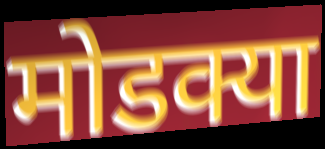
मोडक्या